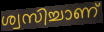
ശ്വസിച്ചാണ്